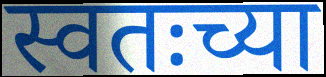
स्वतःच्या